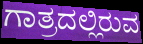
ಗಾತ್ರದಲ್ಲಿರುವ